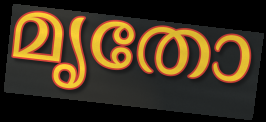
മൃതോ